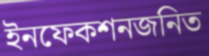
ইনফেকশনজনিত